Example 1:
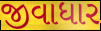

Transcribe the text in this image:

જીવાધાર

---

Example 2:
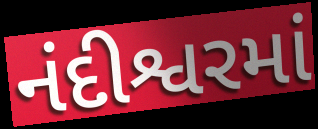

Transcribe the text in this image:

નંદીશ્વરમાં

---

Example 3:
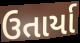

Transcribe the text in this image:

ઉતાર્યા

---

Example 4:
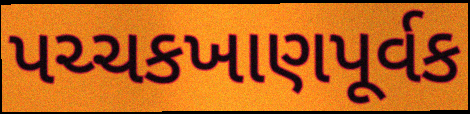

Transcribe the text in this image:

પચ્ચકખાણપૂર્વક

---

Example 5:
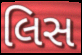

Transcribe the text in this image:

લિસ